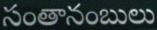
సంతానంబులు